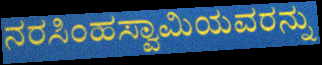
ನರಸಿಂಹಸ್ವಾಮಿಯವರನ್ನು